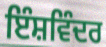
ਇੰਸ਼ਵਿੰਦਰ